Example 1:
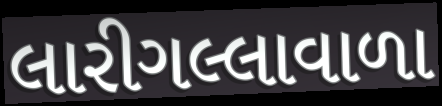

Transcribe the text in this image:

લારીગલ્લાવાળા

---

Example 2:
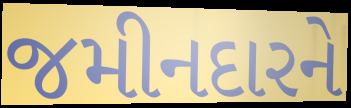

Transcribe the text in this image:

જમીનદારને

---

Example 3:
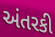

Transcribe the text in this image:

અંતરકી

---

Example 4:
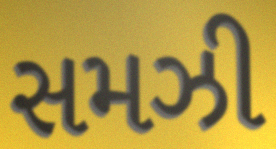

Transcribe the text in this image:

સમઝી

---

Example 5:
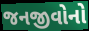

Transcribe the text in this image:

જનજીવોનો